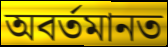
অবৰ্তমানত